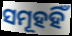
ସମୂହହିଁ